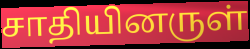
சாதியினருள்